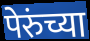
पेरुंच्या